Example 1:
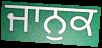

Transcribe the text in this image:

ਜਾਨੁਕ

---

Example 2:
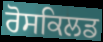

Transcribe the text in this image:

ਰੋਸਕਿਲਡ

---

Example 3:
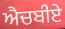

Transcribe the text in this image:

ਐਚਬੀਏ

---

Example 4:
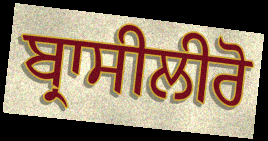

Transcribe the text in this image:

ਬ੍ਰਾਸੀਲੀਰੋ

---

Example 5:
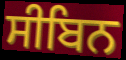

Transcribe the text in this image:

ਸੀਬਿਨ